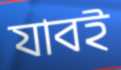
যাবই